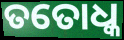
ତତୋଧ୍କ